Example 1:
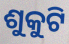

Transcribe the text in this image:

ଶୁକୁଟି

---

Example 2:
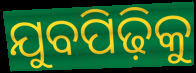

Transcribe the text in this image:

ଯୁବପିଢ଼ିକୁ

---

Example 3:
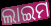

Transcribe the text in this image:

ଲାଇମ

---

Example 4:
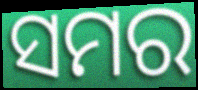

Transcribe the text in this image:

ସମର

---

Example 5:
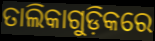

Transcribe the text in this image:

ତାଲିକାଗୁଡ଼ିକରେ